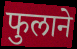
फुलाने